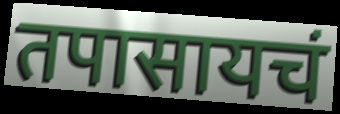
तपासायचं